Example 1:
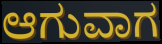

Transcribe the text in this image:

ಆಗುವಾಗ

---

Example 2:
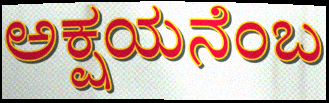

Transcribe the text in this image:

ಅಕ್ಷಯನೆಂಬ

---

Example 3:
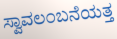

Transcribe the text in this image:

ಸ್ವಾವಲಂಬನೆಯತ್ತ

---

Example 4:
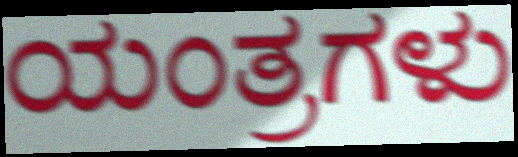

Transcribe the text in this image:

ಯಂತ್ರಗಳು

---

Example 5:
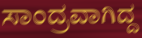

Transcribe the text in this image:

ಸಾಂದ್ರವಾಗಿದ್ದ